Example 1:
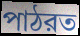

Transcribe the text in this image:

পাঠরত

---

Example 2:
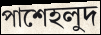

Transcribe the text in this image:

পাশেহলুদ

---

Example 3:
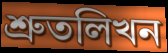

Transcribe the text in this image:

শ্রুতলিখন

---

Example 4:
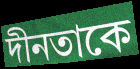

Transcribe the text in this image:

দীনতাকে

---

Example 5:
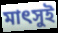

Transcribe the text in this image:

মাৎসুই